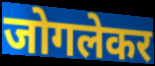
जोगलेकर